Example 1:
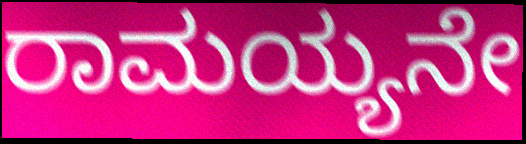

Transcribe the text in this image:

ರಾಮಯ್ಯನೇ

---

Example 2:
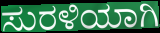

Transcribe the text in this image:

ಸುರಳಿಯಾಗಿ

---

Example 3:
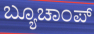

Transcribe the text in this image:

ಬ್ಯೂಚಾಂಪ್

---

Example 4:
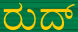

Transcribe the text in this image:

ರುದ್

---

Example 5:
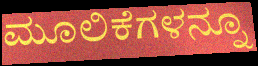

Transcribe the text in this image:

ಮೂಲಿಕೆಗಳನ್ನೂ